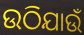
ଉଠିଯାଉଁ